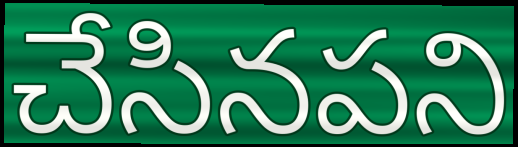
చేసినపని